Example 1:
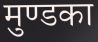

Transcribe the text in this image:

मुण्डका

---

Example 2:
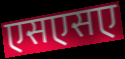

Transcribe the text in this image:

एसएसए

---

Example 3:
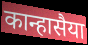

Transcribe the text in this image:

कान्हासैया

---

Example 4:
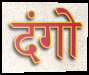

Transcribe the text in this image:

दंगो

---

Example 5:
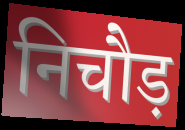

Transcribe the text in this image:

निचौड़